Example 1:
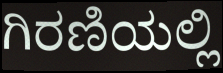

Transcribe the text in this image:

ಗಿರಣಿಯಲ್ಲಿ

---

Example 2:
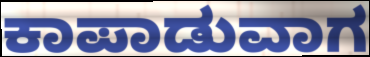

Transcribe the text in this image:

ಕಾಪಾಡುವಾಗ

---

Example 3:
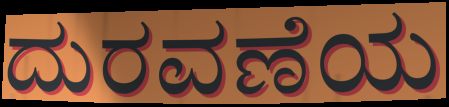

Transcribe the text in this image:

ದುರವಣೆಯ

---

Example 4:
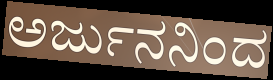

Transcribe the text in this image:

ಅರ್ಜುನನಿಂದ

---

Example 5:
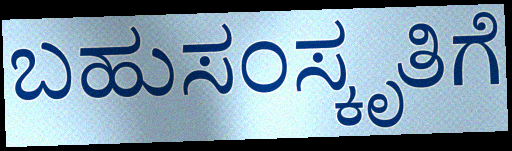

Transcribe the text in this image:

ಬಹುಸಂಸ್ಕೃತಿಗೆ